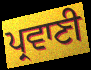
ਪ੍ਰਵਾਣੀ